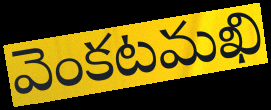
వెంకటమఖి